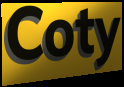
Coty